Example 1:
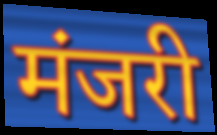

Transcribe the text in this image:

मंजरी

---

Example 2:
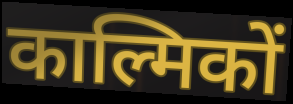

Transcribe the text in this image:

काल्मिकों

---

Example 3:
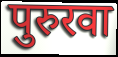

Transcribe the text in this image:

पुरुरवा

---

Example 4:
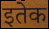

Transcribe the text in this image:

इतेक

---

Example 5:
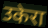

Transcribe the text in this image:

उकेरा